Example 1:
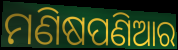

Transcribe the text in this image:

ମଣିଷପଣିଆର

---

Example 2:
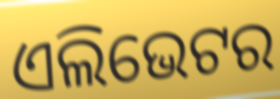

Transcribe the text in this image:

ଏଲିଭେଟର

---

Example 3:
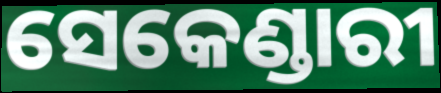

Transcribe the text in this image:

ସେକେଣ୍ଡାରୀ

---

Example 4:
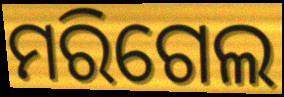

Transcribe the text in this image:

ମରିଗେଲ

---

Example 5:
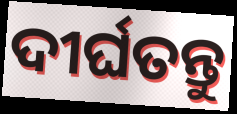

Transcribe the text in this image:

ଦୀର୍ଘତନ୍ତୁ